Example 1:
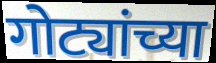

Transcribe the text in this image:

गोट्यांच्या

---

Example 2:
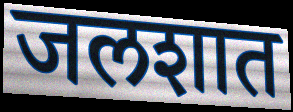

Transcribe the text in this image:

जलशात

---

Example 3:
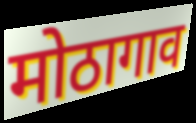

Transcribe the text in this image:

मोठागाव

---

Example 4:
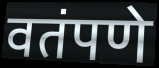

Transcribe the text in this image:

वतंपणे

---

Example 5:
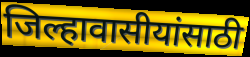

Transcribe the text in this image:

जिल्हावासीयांसाठी